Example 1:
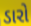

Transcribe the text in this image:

ડારો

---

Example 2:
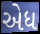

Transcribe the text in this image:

એધ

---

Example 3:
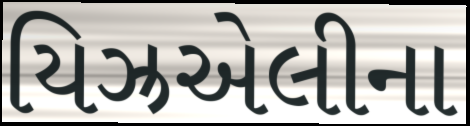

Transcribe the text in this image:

યિઝ્રએલીના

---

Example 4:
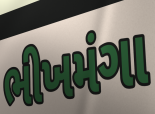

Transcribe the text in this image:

ભીખમંગા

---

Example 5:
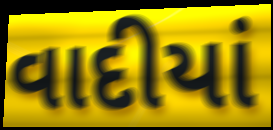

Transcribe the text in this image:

વાદીયાં